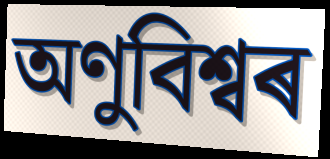
অণুবিশ্বৰ